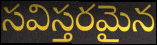
సవిస్తరమైన